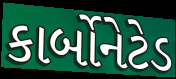
કાર્બોનેટેડ